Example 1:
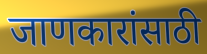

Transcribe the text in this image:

जाणकारांसाठी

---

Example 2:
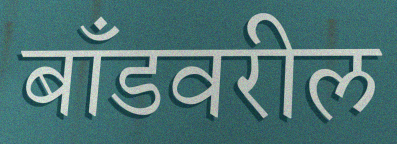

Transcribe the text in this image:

बॉंडवरील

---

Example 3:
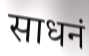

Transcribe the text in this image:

साधनं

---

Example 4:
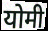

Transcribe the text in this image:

योमी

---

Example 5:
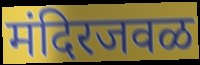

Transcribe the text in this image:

मंदिरजवळ